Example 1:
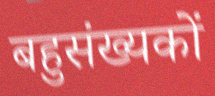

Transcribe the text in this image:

बहुसंख्यकों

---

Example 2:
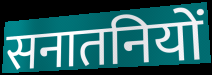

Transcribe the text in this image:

सनातनियों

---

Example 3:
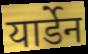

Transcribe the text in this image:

यार्डेन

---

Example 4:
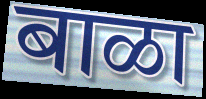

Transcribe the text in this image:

बाळा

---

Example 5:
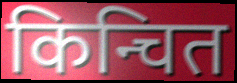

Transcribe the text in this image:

किन्चित